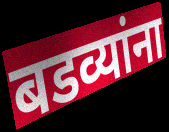
बडव्यांना